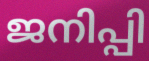
ജനിപ്പി